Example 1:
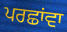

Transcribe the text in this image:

ਪਰਛਾਂਵਾ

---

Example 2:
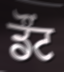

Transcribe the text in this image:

ਡੌਂਟ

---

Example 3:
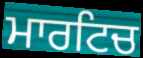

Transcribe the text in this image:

ਮਾਰਟਿਚ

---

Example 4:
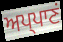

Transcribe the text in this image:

ਅਪ੍ਪਾਣਂ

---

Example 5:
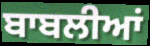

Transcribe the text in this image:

ਬਾਬਲੀਆਂ